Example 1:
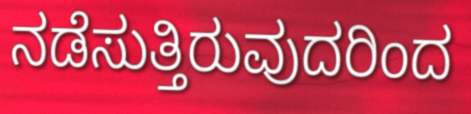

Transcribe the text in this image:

ನಡೆಸುತ್ತಿರುವುದರಿಂದ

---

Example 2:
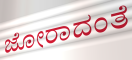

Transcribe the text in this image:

ಜೋರಾದಂತೆ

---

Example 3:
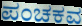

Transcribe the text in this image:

ಪಂಚಕವ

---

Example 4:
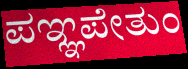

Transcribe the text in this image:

ಪಞ್ಞಪೇತುಂ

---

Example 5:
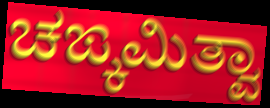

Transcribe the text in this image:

ಚಙ್ಕಮಿತ್ವಾ